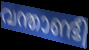
വന്താണ്ടീ